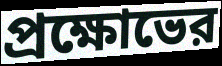
প্রক্ষোভের